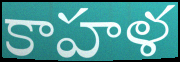
కాహళ